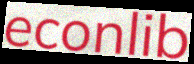
econlib